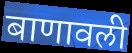
बाणावली